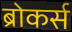
ब्रोकर्स